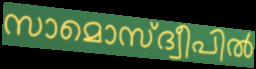
സാമൊസ്ദ്വീപിൽ